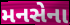
મનસેના